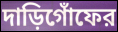
দাড়িগোঁফের